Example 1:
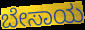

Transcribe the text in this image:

ಬೇಸಾಯ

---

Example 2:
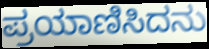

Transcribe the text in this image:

ಪ್ರಯಾಣಿಸಿದನು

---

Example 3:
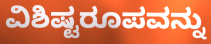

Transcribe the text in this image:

ವಿಶಿಷ್ಟರೂಪವನ್ನು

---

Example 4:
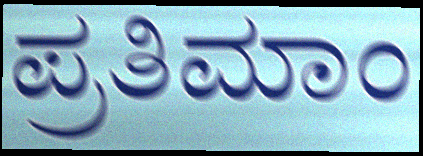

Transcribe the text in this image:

ಪ್ರತಿಮಾಂ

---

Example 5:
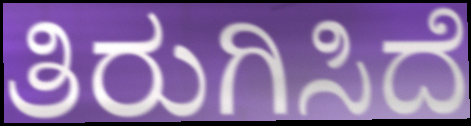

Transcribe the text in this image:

ತಿರುಗಿಸಿದೆ